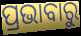
ପ୍ରଭାବାରୁ